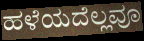
ಹಳೆಯದೆಲ್ಲವೂ